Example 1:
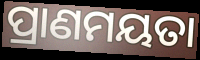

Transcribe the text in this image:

ପ୍ରାଣମୟତା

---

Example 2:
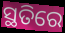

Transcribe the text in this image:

ସ୍ଥତିରେ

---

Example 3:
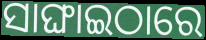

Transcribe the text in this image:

ସାଙ୍ଘାଇଠାରେ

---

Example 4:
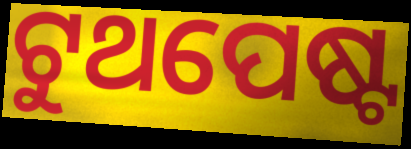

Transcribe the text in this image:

ଟୁଥପେଷ୍ଟ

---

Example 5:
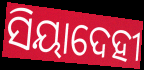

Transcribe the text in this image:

ସିୟାଦେହୀ